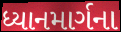
ધ્યાનમાર્ગના